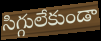
సిగ్గులేకుండా